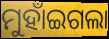
ମୁହାଁଇଗଲା